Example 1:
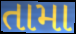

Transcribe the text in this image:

તામા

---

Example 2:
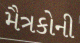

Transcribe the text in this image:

મૈત્રકોની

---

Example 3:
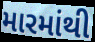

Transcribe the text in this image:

મારમાંથી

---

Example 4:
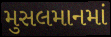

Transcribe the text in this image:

મુસલમાનમાં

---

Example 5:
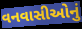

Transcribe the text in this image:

વનવાસીઓનું